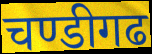
चण्डीगढ